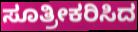
ಸೂತ್ರೀಕರಿಸಿದ